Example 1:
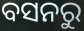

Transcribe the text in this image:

ବସନରୁ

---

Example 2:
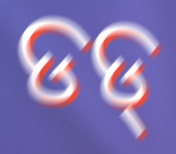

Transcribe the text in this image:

ଡଡ୍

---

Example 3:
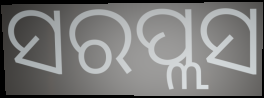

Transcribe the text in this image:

ସରପ୍ଲସ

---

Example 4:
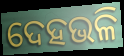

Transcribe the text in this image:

ଦେହଭଳି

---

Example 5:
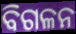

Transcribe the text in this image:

ବିଗଳନ